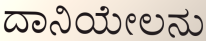
ದಾನಿಯೇಲನು